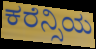
ಕರೆನ್ಸಿಯ